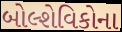
બોલ્શેવિકોના